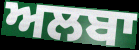
ਅਲਬਾ